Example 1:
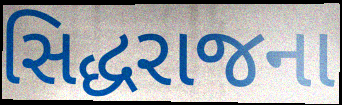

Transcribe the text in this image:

સિદ્ધરાજના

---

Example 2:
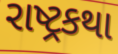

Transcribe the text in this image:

રાષ્ટ્રકથા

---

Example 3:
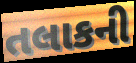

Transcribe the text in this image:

તલાકની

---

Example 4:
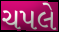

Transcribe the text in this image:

ચપલે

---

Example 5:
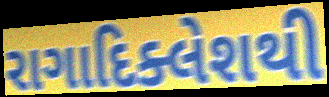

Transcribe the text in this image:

રાગાદિક્લેશથી